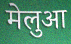
मेलुआ